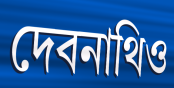
দেবনাথিও